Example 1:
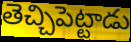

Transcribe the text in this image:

తెచ్చిపెట్టాడు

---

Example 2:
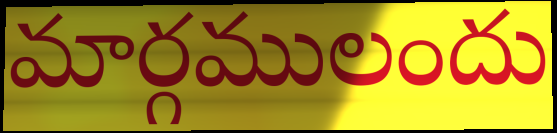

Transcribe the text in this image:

మార్గములందు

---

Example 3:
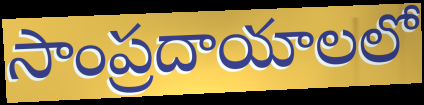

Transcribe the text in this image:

సాంప్రదాయాలలో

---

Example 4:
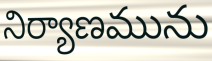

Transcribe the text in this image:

నిర్యాణమును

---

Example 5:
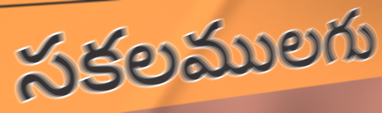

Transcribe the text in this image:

సకలములగు